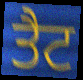
ਤੈਟ